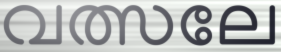
വത്സലേ